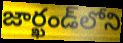
జార్ఖండ్‌లోని